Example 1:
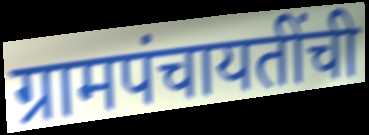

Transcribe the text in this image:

ग्रामपंचायतींची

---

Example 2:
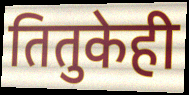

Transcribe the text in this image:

तितुकेही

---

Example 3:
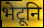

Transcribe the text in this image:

भेटूनि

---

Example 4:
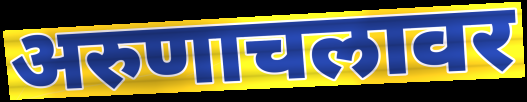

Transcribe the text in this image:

अरुणाचलावर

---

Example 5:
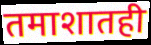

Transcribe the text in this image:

तमाशातही